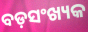
ବଡ଼ସଂଖ୍ୟକ